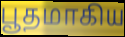
பூதமாகிய